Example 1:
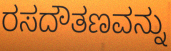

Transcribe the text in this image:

ರಸದೌತಣವನ್ನು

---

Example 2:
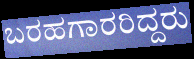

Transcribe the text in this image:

ಬರಹಗಾರರಿದ್ದರು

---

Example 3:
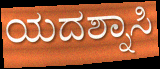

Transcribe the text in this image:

ಯದಶ್ನಾಸಿ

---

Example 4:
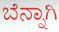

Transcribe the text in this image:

ಬೆನ್ನಾಗಿ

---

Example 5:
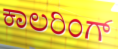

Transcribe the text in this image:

ಕಾಲರಿಂಗ್